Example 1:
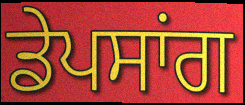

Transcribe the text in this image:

ਡੇਪਸਾਂਗ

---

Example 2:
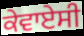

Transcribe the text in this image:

ਕੇਵਾਏਸੀ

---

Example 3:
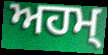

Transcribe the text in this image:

ਅਹਮ੍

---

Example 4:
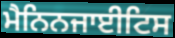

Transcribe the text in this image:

ਮੈਨਿਨਜਾਈਟਿਸ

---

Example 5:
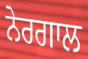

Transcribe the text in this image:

ਨੇਰਗਾਲ